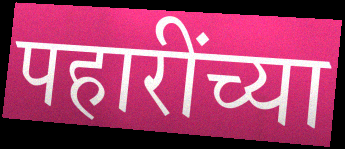
पहारींच्या